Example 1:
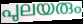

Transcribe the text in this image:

പുലയരും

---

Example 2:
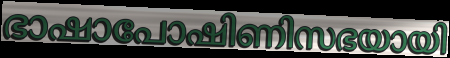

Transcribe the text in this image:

ഭാഷാപോഷിണിസഭയായി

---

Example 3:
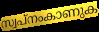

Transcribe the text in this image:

സ്വപ്നംകാണുക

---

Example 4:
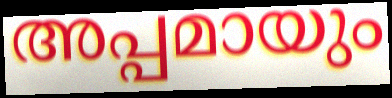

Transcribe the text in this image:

അപ്പമായും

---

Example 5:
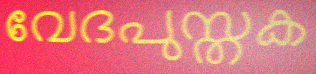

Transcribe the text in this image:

വേദപുസ്തക